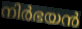
നിർഭയൻ